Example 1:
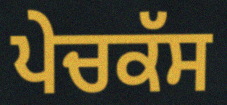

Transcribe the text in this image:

ਪੇਚਕੱਸ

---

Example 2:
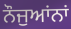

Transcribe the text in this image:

ਨੌਜੁਆਂਨਾਂ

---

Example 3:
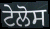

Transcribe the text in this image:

ਟੇਲੋਸ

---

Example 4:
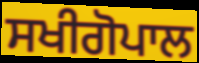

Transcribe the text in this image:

ਸਖੀਗੋਪਾਲ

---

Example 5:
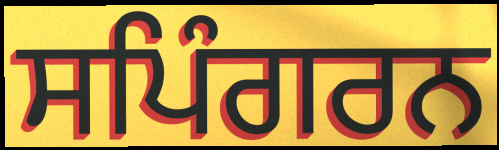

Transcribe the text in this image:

ਸਪਿੰਗਰਨ